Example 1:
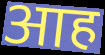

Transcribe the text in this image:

आह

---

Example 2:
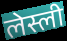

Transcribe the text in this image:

लेस्ली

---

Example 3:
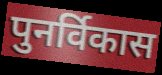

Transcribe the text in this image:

पुनर्विकास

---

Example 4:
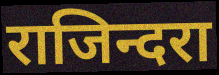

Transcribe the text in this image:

राजिन्दरा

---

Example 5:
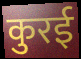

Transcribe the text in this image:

कुरई